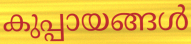
കുപ്പായങ്ങൾ